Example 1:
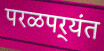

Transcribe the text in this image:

परळपर्यंत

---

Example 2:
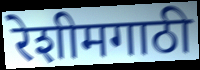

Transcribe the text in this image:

रेशीमगाठी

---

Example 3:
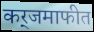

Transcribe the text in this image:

कर्जमाफीत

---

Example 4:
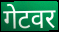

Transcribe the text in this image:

गेटवर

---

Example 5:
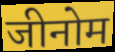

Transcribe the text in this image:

जीनोम